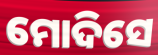
ମୋଦିସେ